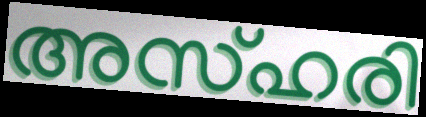
അസ്ഹരി